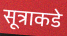
सूत्राकडे